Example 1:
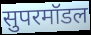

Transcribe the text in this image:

सुपरमॉडल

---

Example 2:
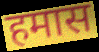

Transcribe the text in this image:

हमास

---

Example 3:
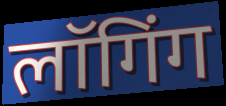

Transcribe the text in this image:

लॉगिंग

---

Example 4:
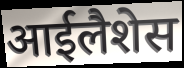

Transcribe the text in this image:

आईलैशेस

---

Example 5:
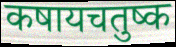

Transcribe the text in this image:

कषायचतुष्क